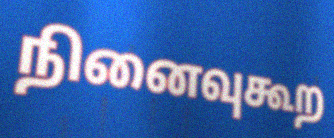
நினைவுகூற